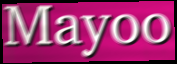
Mayoo